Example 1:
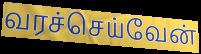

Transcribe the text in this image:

வரச்செய்வேன்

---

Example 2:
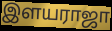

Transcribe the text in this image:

இளயராஜா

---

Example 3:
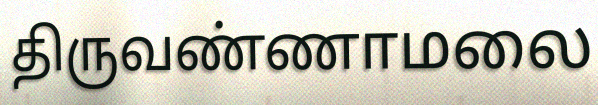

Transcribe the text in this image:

திருவண்ணாமலை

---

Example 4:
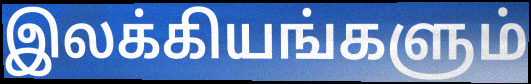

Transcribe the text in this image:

இலக்கியங்களும்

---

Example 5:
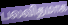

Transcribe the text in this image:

பலவிதமாக